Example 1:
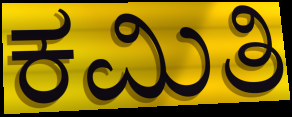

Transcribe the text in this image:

ಕಮಿತಿ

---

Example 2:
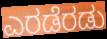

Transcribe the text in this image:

ಎರಡೆರಡು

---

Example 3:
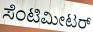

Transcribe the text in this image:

ಸೆಂಟಿಮೀಟರ್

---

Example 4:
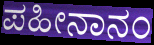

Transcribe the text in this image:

ಪಹೀನಾನಂ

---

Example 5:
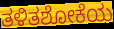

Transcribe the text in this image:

ತಳಿತಶೋಕೆಯ